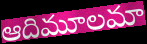
ఆదిమూలమా